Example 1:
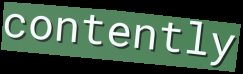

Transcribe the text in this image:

contently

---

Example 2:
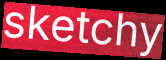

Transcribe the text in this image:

sketchy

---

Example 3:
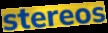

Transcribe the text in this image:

stereos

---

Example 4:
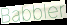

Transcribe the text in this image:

Babbler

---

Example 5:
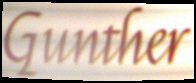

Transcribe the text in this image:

Gunther